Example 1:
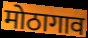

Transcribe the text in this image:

मोठागाव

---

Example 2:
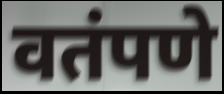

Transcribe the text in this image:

वतंपणे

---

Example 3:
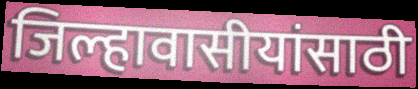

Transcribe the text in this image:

जिल्हावासीयांसाठी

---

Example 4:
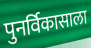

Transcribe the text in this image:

पुनर्विकासाला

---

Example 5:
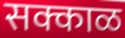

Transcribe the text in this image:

सक्काळ